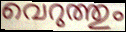
വെറുത്തും